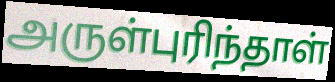
அருள்புரிந்தாள்